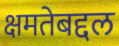
क्षमतेबद्दल